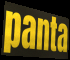
panta